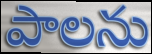
పాలను